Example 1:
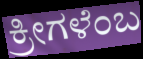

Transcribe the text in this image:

ಕ್ರೀಗಳೆಂಬ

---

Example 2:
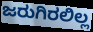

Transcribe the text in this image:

ಜರುಗಿರಲಿಲ್ಲ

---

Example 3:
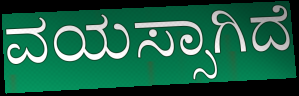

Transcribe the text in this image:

ವಯಸ್ಸಾಗಿದೆ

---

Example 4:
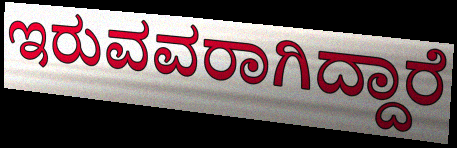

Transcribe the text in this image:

ಇರುವವರಾಗಿದ್ದಾರೆ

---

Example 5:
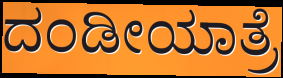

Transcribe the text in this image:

ದಂಡೀಯಾತ್ರೆ